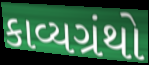
કાવ્યગ્રંથો